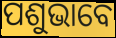
ପଶୁଭାବେ